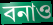
বনাও